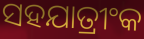
ସହଯାତ୍ରୀଂକ